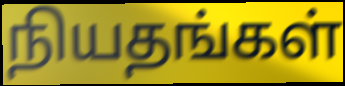
நியதங்கள்